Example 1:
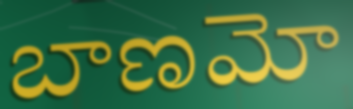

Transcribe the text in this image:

బాణమో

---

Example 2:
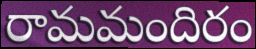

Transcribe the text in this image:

రామమందిరం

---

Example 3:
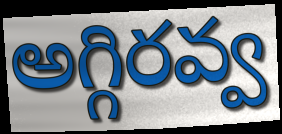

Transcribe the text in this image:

అగ్గిరవ్వ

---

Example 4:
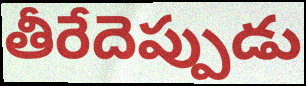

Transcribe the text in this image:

తీరేదెప్పుడు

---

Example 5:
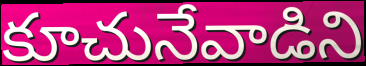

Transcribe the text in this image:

కూచునేవాడిని